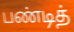
பண்டித்